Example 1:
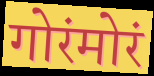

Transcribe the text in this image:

गोरंमोरं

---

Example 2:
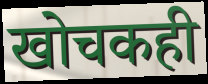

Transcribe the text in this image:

खोचकही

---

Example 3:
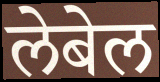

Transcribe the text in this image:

लेबेल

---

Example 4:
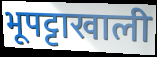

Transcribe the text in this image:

भूपट्टाखाली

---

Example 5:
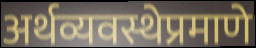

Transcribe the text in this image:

अर्थव्यवस्थेप्रमाणे